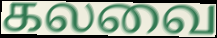
கலவை